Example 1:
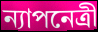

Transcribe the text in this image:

ন্যাপনেত্রী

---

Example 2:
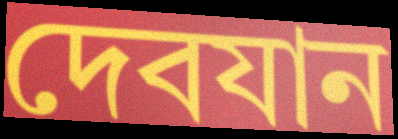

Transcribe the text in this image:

দেবযান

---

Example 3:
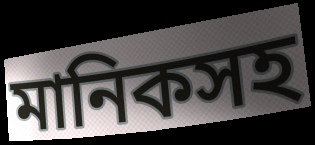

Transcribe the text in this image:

মানিকসহ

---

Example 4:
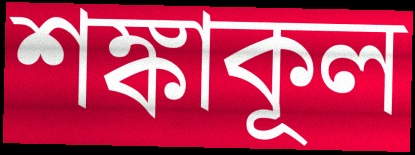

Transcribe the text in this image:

শঙ্কাকূল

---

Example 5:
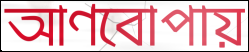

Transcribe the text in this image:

আণবোপায়